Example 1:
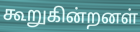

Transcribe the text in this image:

கூறுகின்றனள்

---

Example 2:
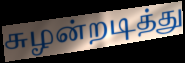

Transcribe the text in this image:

சுழன்றடித்து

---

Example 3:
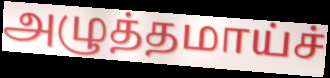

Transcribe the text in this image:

அழுத்தமாய்ச்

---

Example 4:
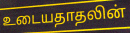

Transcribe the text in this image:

உடையதாதலின்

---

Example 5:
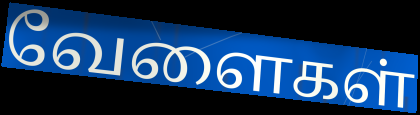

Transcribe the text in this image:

வேளைகள்